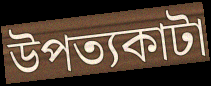
উপত্যকাটা